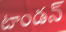
టాండన్